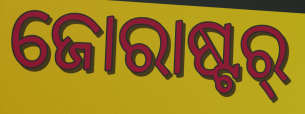
ଜୋରାଷ୍ଟର୍